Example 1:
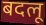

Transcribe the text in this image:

बदलू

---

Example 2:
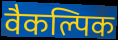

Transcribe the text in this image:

वैकल्पिक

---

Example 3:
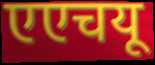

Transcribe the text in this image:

एएचयू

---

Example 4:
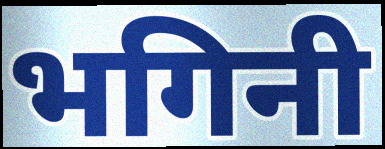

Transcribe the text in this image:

भगिनी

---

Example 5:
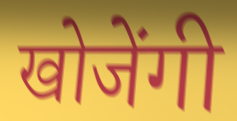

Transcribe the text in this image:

खोजेंगी